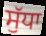
ਸੁੱਧਾ